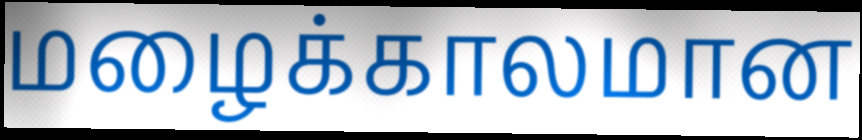
மழைக்காலமான